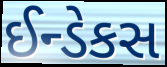
ઈન્ડેકસ